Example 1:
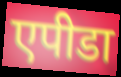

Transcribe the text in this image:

एपीडा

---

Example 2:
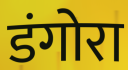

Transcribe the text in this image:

डंगोरा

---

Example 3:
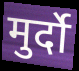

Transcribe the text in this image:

मुर्दो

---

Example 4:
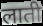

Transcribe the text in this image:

लाती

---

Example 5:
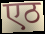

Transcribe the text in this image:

एठ